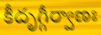
కీదృగ్గీర్వాణః